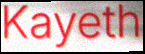
Kayeth